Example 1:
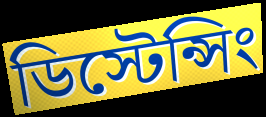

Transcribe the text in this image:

ডিস্টেন্সিং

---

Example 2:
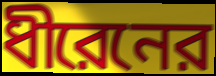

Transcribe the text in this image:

ধীরেনের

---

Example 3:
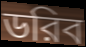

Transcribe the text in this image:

ডরিব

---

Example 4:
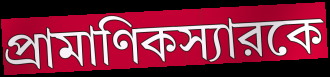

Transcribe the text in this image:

প্রামাণিকস্যারকে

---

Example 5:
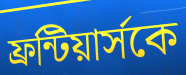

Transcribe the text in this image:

ফ্রন্টিয়ার্সকে